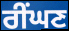
ਰੀਂਘਣ